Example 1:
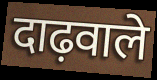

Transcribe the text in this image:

दाढ़वाले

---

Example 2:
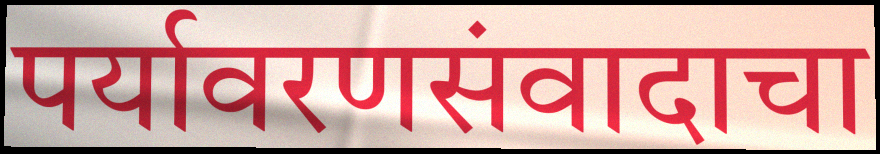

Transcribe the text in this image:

पर्यावरणसंवादाचा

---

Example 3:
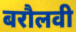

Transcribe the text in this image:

बरौलवी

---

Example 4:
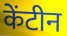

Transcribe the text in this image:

केंटीन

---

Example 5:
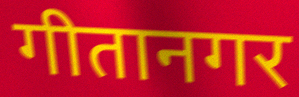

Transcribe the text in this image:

गीतानगर